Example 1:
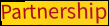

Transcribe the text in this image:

Partnership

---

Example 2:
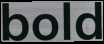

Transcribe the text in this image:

bold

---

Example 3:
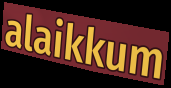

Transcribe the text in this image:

alaikkum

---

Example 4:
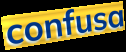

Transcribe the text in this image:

confusa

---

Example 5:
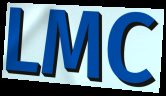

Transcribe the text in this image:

LMC